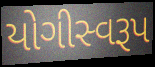
યોગીસ્વરૂપ